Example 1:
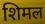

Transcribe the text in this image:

शिमल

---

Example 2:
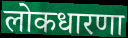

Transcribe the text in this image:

लोकधारणा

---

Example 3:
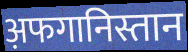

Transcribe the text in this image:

अ़फगानिस्तान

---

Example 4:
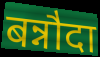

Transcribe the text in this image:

बन्नौदा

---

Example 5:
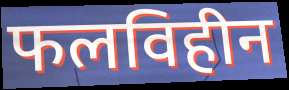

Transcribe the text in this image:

फलविहीन